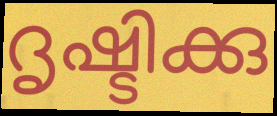
ദൃഷ്ടിക്കു